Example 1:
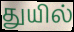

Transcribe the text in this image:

துயில்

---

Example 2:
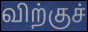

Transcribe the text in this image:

விற்குச்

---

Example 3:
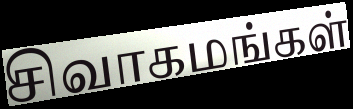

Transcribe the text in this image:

சிவாகமங்கள்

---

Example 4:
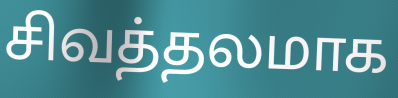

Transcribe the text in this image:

சிவத்தலமாக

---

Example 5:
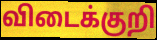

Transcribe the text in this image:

விடைக்குறி